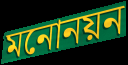
মনোনয়ন